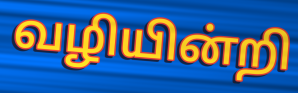
வழியின்றி